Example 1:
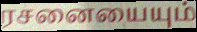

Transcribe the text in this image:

ரசனையையும்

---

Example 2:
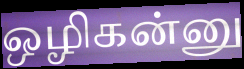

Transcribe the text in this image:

ஒழிகன்னு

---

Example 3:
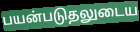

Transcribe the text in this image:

பயன்படுதலுடைய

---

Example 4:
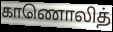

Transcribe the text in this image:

காணொலித்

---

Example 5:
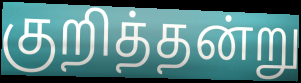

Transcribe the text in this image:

குறித்தன்று